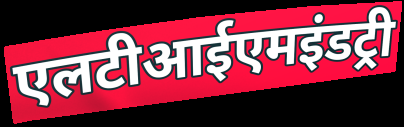
एलटीआईएमइंडट्री